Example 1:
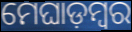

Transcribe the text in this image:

ମେଘାଡ଼ମ୍ବର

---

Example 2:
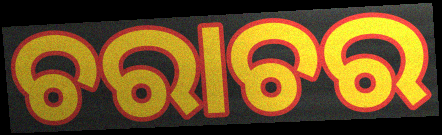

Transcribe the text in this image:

ଚରାଚର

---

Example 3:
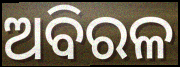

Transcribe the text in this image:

ଅବିରଳ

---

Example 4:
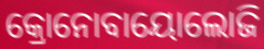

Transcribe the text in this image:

କ୍ରୋନୋବାୟୋଲୋଜି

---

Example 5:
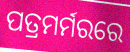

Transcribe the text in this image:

ପତ୍ରମର୍ମରରେ